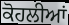
ਕੋਹਲੀਆਂ